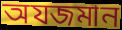
অযজমান